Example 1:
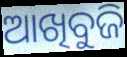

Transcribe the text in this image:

ଆଖିବୁଜି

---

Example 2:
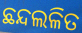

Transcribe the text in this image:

ଛନ୍ଦଲଳିତ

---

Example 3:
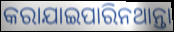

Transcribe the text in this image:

କରାଯାଇପାରିନଥାନ୍ତା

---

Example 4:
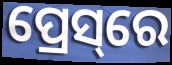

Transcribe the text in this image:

ପ୍ରେସ୍‌ରେ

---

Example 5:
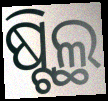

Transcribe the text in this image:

ଷ୍ଟିଲ୍ଥ